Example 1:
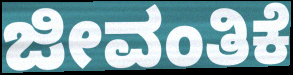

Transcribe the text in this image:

ಜೀವಂತಿಕೆ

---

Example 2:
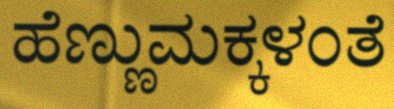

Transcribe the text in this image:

ಹೆಣ್ಣುಮಕ್ಕಳಂತೆ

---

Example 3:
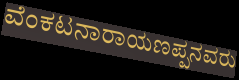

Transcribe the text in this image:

ವೆಂಕಟನಾರಾಯಣಪ್ಪನವರು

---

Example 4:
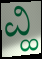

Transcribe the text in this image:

ವ್ಹಿ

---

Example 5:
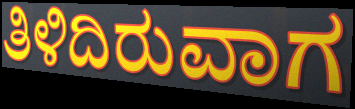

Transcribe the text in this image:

ತಿಳಿದಿರುವಾಗ